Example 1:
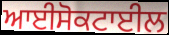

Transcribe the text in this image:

ਆਈਸੋਕਟਾਈਲ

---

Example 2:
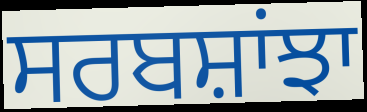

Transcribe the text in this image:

ਸਰਬਸ਼ਾਂਝਾ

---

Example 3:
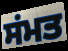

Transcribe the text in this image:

ਸਂਮਤ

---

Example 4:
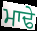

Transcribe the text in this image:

ਮਾਢੇ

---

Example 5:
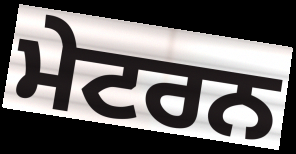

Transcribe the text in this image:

ਮੇਟਰਨ